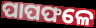
ପାପଫଳେ